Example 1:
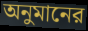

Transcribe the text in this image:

অনুমানের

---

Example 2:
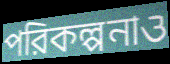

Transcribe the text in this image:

পরিকল্পনাও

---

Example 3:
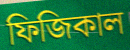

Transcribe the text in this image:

ফিজিকাল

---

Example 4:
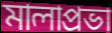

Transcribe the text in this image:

মালাপ্রভা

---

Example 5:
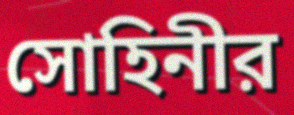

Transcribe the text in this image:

সোহিনীর